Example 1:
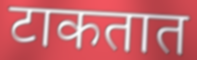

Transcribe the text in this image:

टाकतात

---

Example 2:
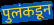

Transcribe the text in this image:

पुलंकडून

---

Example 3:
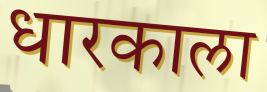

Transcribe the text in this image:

धारकाला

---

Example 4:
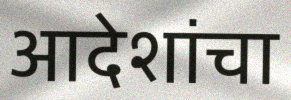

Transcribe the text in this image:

आदेशांचा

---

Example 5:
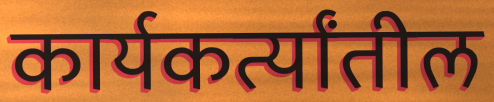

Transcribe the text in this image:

कार्यकर्त्यांतील